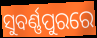
ସୁବର୍ଣ୍ଣପୁରରେ